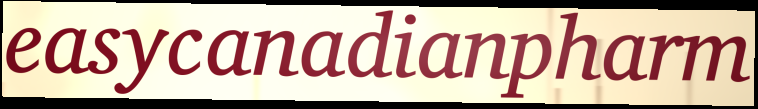
easycanadianpharm